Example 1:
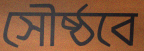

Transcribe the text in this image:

সৌষ্ঠবে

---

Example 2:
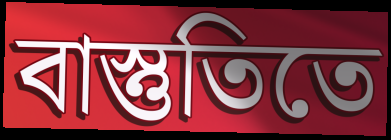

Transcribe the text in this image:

বাস্তুতিতে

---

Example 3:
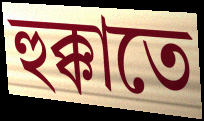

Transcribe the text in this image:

হুক্কাতে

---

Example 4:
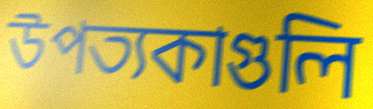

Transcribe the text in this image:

উপত্যকাগুলি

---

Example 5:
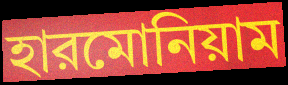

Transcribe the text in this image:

হারমোনিয়াম